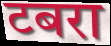
टबरा